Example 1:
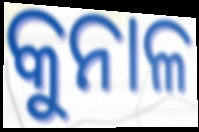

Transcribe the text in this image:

କୁନାଳ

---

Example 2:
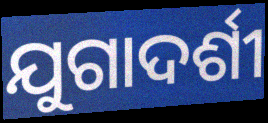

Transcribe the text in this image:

ଯୁଗାଦର୍ଶୀ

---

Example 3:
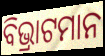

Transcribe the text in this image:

ବିଭ୍ରାଟମାନ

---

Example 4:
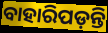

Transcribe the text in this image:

ବାହାରିପଡ଼ନ୍ତି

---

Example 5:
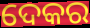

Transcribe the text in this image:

ଦେକର